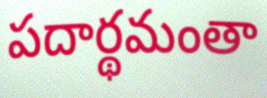
పదార్థమంతా